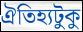
ঐতিহ্যটুকু